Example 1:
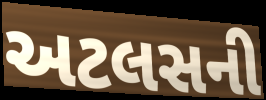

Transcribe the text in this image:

અટલસની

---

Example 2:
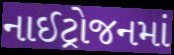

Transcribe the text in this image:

નાઈટ્રોજનમાં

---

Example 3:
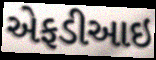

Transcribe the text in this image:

એફડીઆઇ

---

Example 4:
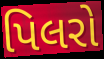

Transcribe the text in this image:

પિલરો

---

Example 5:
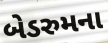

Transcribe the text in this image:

બેડરુમના